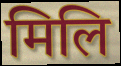
मिलि